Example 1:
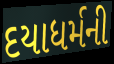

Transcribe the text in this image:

દયાધર્મની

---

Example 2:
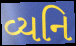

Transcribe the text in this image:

વ્યનિ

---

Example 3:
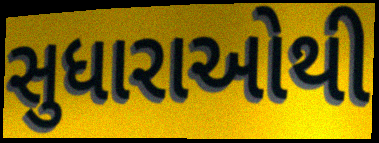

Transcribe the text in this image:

સુધારાઓથી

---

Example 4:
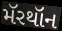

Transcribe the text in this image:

મૅરથૉન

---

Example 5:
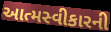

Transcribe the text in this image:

આત્મસ્વીકારની